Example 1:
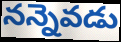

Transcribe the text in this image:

నన్నెవడు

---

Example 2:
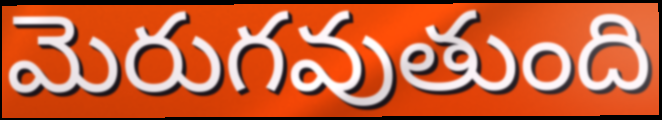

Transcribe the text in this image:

మెరుగవుతుంది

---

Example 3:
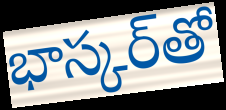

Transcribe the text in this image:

భాస్కర్‌తో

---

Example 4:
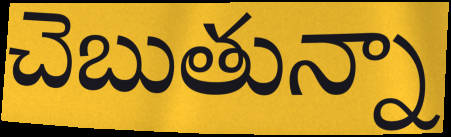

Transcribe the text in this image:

చెబుతున్నా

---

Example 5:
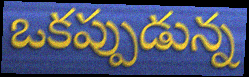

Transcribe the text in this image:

ఒకప్పుడున్న